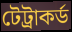
টেট্ৰাকৰ্ড